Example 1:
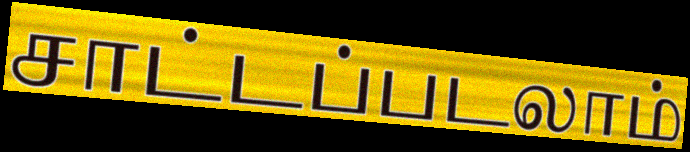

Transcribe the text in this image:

சாட்டப்படலாம்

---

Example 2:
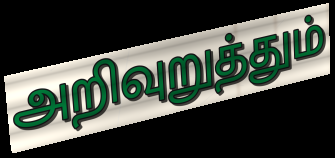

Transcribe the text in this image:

அறிவுறுத்தும்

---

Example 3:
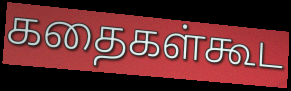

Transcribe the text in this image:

கதைகள்கூட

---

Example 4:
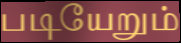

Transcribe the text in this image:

படியேறும்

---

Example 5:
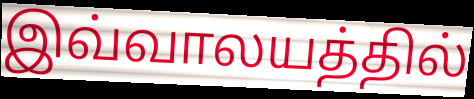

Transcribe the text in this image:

இவ்வாலயத்தில்